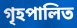
গৃহপালিত